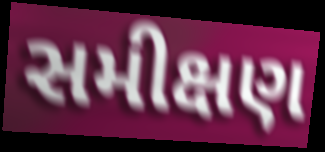
સમીક્ષણ